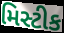
મિસ્ટીક